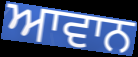
ਆਵਾਨ